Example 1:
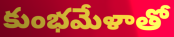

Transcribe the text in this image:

కుంభమేళాతో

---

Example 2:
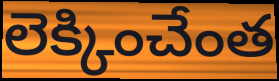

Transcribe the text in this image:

లెక్కించేంత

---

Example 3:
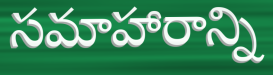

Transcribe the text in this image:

సమాహారాన్ని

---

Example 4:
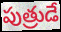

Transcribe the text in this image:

పుత్రుడే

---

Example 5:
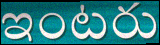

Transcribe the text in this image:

ఇంటరు